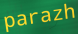
parazh